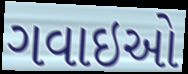
ગવાઇઓ